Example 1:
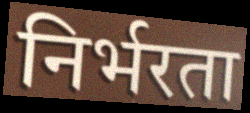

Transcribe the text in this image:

निर्भरता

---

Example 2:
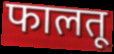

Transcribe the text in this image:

फालतू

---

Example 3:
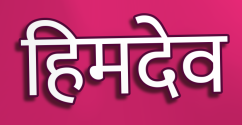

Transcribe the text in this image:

हिमदेव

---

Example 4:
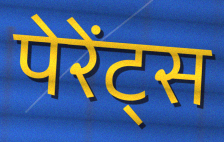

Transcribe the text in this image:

पेरेंट्स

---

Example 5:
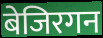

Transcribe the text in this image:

बेजिरगन